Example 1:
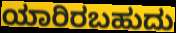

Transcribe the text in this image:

ಯಾರಿರಬಹುದು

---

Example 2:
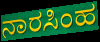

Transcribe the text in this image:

ನಾರಸಿಂಹ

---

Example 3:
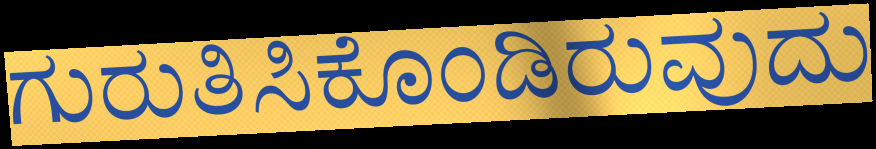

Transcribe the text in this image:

ಗುರುತಿಸಿಕೊಂಡಿರುವುದು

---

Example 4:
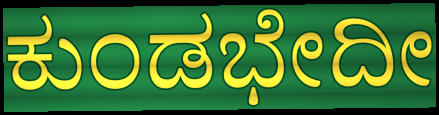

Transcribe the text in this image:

ಕುಂಡಭೇದೀ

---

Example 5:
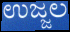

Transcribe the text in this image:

ಉಜ್ಜಲ